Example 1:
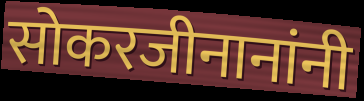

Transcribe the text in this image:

सोकरजीनानांनी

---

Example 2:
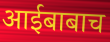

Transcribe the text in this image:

आईबाबाच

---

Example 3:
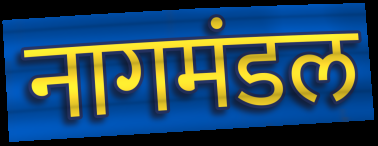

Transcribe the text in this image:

नागमंडल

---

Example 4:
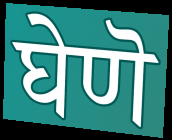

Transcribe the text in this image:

घेणॆ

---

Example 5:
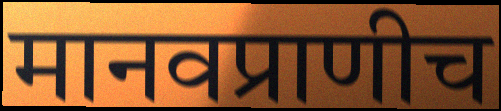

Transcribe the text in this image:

मानवप्राणीच